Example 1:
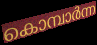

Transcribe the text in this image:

കൊമ്പാർന്ന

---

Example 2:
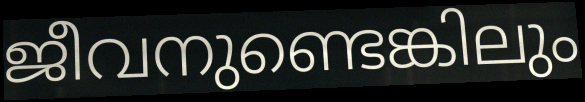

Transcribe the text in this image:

ജീവനുണ്ടെങ്കിലും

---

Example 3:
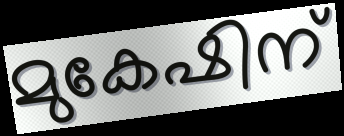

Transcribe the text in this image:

മുകേഷിന്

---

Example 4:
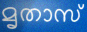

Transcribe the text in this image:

മൃതാസ്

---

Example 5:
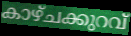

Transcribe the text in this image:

കാഴ്ചക്കുറവ്